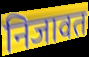
निजावत